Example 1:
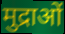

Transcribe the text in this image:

मुद्राओं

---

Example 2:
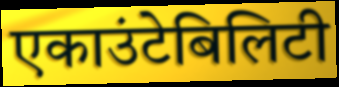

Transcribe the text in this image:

एकाउंटेबिलिटी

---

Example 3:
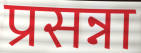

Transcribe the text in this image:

प्रसन्ना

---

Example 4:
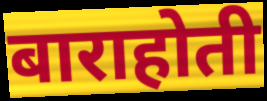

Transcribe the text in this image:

बाराहोती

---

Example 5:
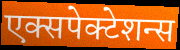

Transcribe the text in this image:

एक्सपेक्टेशन्स